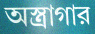
অস্ত্রাগার